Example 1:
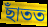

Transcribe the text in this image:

ছাঁতত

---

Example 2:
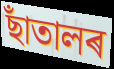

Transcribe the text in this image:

ছাঁতালৰ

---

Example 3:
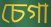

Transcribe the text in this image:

চেগা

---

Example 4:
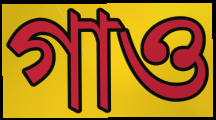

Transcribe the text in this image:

গাও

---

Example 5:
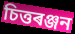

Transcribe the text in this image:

চিত্তৰঞ্জন